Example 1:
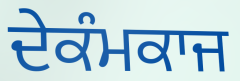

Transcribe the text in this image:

ਦੇਕੰਮਕਾਜ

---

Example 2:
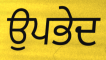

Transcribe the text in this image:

ਉਪਭੇਦ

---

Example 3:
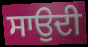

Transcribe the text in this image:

ਸਾਉਦੀ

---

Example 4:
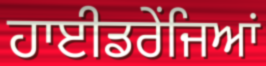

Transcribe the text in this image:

ਹਾਈਡਰੇਂਜਿਆਂ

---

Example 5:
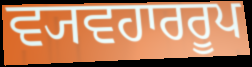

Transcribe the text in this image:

ਵ੍ਯਵਹਾਰਰੂਪ